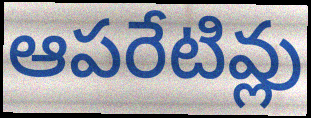
ఆపరేటివ్లు